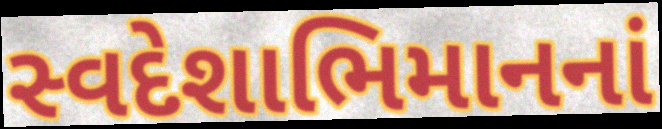
સ્વદેશાભિમાનનાં